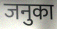
जनुका